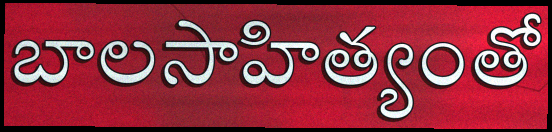
బాలసాహిత్యంతో